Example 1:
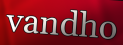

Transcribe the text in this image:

vandho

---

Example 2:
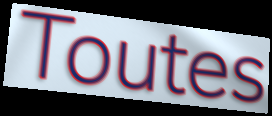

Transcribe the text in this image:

Toutes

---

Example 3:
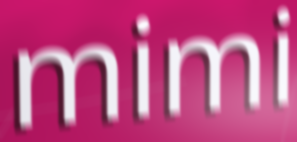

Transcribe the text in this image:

mimi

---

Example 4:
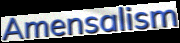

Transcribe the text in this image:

Amensalism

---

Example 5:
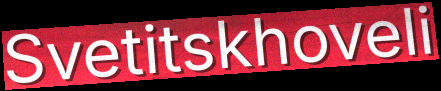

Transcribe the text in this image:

Svetitskhoveli